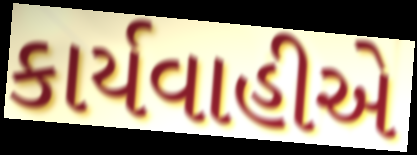
કાર્યવાહીએ